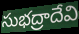
సుభద్రాదేవి